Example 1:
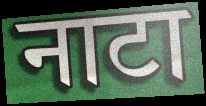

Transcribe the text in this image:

नाटा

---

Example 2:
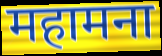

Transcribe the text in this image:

महामना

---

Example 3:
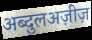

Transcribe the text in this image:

अब्दुलअज़ीज़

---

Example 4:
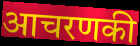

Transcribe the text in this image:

आचरणकी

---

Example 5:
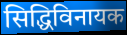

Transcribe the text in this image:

सिद्धिविनायक